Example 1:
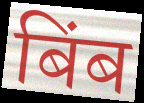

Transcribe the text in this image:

बिंब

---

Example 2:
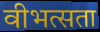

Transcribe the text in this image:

वीभत्सता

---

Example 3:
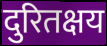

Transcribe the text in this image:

दुरितक्षय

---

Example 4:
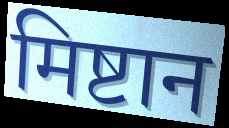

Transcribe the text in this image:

मिष्टान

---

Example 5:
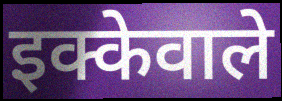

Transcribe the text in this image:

इक्केवाले